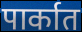
पार्कात